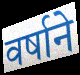
वर्षाने